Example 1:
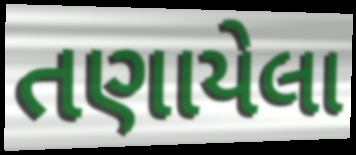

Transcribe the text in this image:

તણાયેલા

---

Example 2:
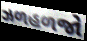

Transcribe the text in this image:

ઝળહળજો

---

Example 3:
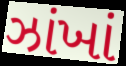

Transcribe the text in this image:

ઝાંખાં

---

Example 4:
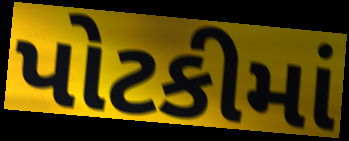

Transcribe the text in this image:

પોટકીમાં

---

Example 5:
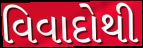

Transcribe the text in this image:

વિવાદોથી